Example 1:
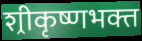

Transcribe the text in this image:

श्रीकृष्णभक्त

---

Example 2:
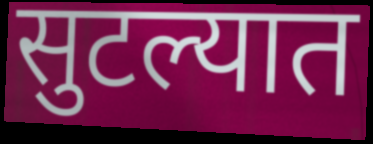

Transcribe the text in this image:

सुटल्यात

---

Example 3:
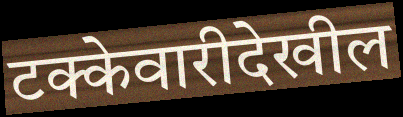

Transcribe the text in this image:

टक्केवारीदेखील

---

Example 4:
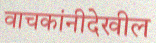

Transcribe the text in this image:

वाचकांनीदेखील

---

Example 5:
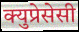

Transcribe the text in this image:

क्युप्रेसेसी